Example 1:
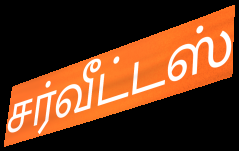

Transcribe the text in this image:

சர்வீட்டஸ்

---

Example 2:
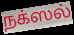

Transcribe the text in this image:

நக்ஸல்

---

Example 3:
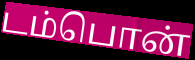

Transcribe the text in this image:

டம்பொன்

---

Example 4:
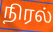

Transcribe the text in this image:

நிரல்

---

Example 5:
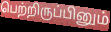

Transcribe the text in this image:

பெற்றிருப்பினும்